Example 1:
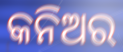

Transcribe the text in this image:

କନିଅର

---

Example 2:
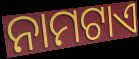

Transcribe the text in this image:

ନାମଟାଏ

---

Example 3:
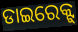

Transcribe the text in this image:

ଡାଇରେକ୍ଟ୍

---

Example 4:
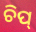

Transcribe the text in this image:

ଚିପ୍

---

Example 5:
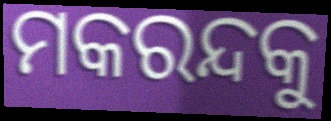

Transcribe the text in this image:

ମକରନ୍ଦକୁ